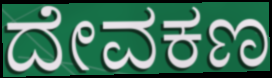
ದೇವಕಣ